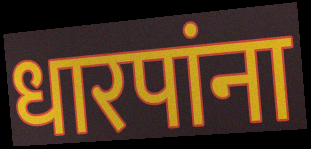
धारपांना